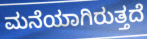
ಮನೆಯಾಗಿರುತ್ತದೆ